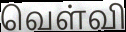
வெள்வி